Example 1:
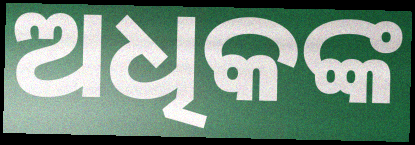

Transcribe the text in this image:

ଅଧିକଙ୍କ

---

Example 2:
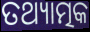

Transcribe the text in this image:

ତଥ୍ୟାତ୍ମକ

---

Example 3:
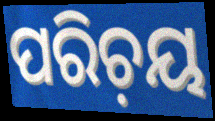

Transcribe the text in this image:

ପରିଚ଼ୟ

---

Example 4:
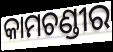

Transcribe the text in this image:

କାମଚଣ୍ଡୀର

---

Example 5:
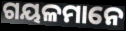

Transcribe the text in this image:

ଗୟଳମାନେ